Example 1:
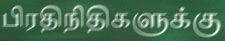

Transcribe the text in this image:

பிரதிநிதிகளுக்கு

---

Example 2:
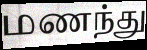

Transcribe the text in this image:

மணந்து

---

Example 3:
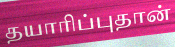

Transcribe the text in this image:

தயாரிப்புதான்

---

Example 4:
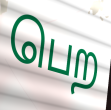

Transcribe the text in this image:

பெற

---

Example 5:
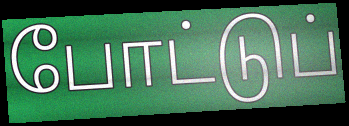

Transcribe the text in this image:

போட்டுப்